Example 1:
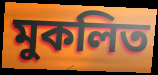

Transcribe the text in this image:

মুকলিত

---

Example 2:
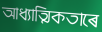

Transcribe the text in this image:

আধ্যাত্মিকতাৰে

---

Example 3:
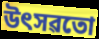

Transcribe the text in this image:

উৎসৱতো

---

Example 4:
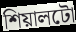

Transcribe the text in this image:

শিয়ালটো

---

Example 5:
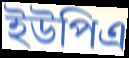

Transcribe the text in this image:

ইউপিএ